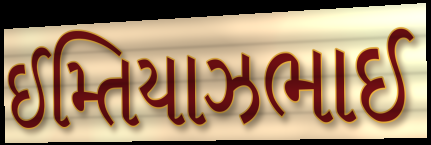
ઈમ્તિયાઝભાઈ